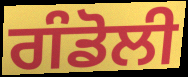
ਗੰਡੋਲੀ